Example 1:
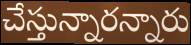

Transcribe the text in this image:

చేస్తున్నారన్నారు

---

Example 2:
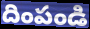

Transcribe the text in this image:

దింపండి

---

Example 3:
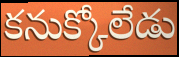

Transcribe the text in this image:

కనుక్కోలేడు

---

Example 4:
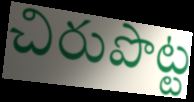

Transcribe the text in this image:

చిరుపొట్ట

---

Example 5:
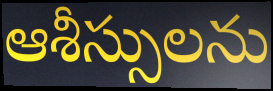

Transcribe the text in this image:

ఆశీస్సులను